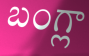
బంగ్లా